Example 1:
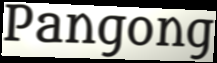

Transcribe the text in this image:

Pangong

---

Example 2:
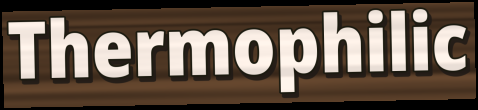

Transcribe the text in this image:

Thermophilic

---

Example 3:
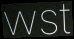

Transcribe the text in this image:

wst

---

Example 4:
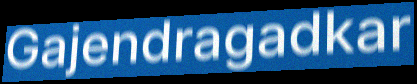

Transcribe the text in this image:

Gajendragadkar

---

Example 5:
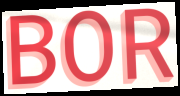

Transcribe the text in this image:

BOR